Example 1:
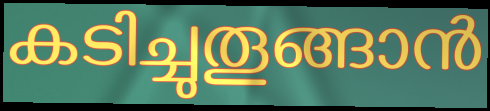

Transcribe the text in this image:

കടിച്ചുതൂങ്ങാൻ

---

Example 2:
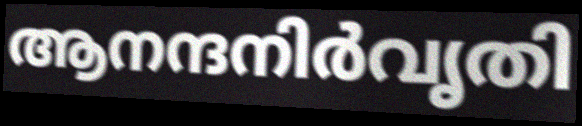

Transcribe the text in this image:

ആനന്ദനിർവൃതി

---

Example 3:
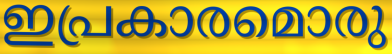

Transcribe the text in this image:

ഇപ്രകാരമൊരു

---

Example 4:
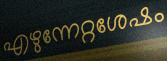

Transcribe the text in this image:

എഴുന്നേറ്റശേഷം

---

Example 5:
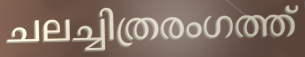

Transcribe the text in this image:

ചലച്ചിത്രരംഗത്ത്